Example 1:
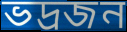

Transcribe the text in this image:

ভদ্রজন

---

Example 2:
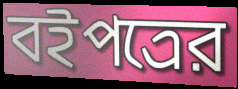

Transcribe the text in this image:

বইপত্রের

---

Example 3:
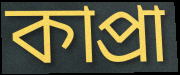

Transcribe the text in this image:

কাপ্রা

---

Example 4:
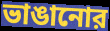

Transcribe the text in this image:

ভাঙানোর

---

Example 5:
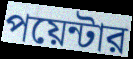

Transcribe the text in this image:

পয়েন্টার